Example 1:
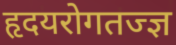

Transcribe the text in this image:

हृदयरोगतज्ज्ञ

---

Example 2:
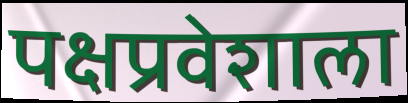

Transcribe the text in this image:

पक्षप्रवेशाला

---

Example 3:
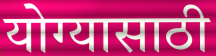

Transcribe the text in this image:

योग्यासाठी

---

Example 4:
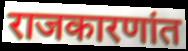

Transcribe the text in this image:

राजकारणांत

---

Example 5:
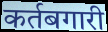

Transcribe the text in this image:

कर्तबगारी